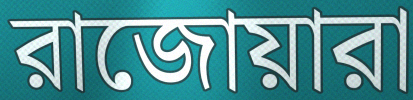
রাজোয়ারা